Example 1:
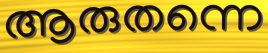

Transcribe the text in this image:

ആരുതന്നെ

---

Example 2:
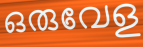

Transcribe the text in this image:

ഒരുവേള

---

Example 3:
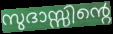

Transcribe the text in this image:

സുദാസ്സിന്റെ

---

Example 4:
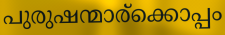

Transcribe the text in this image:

പുരുഷന്മാര്ക്കൊപ്പം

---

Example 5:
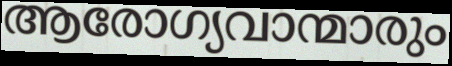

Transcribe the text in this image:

ആരോഗ്യവാന്മാരും